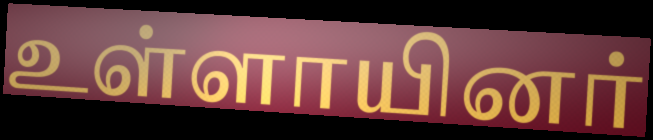
உள்ளாயினர்